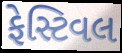
ફેસ્ટિવલ